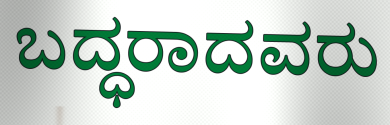
ಬದ್ಧರಾದವರು